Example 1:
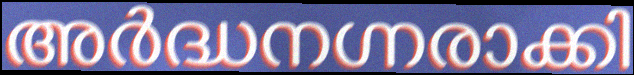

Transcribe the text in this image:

അർദ്ധനഗ്നരാക്കി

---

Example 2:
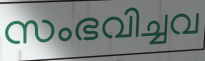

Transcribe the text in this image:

സംഭവിച്ചവ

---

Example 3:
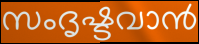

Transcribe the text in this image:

സംദൃഷ്ടവാൻ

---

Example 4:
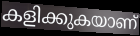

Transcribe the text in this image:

കളിക്കുകയാണ്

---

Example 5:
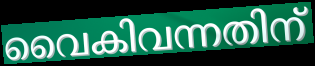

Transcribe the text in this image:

വൈകിവന്നതിന്